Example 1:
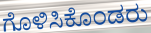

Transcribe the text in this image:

ಗೊಳಿಸಿಕೊಂಡರು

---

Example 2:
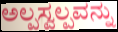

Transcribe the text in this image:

ಅಲ್ಪಸ್ವಲ್ಪವನ್ನು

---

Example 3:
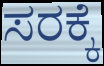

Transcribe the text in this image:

ಸರಕ್ಕೆ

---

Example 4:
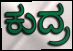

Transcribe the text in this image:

ಕುದ್ರ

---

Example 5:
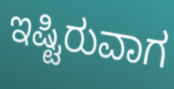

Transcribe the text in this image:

ಇಷ್ಟಿರುವಾಗ